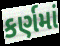
કર્ણમાં